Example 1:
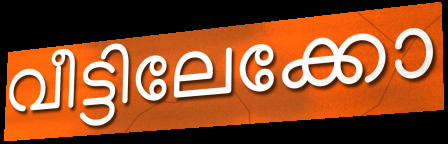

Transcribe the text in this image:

വീട്ടിലേക്കോ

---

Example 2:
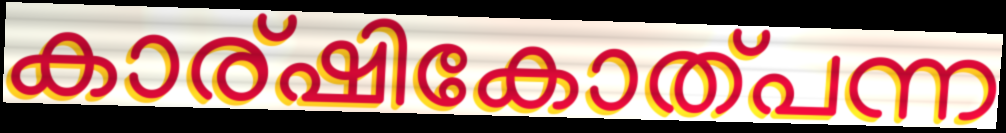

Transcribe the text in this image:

കാര്ഷികോത്പന്ന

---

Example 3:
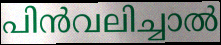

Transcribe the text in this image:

പിൻവലിച്ചാൽ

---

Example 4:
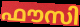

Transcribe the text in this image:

ഫൗസി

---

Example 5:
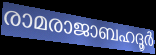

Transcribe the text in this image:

രാമരാജാബഹദൂർ